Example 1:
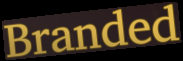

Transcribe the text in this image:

Branded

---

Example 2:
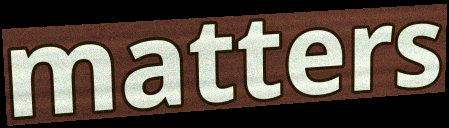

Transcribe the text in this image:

matters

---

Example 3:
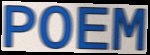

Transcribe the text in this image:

POEM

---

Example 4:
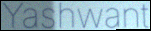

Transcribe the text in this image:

Yashwant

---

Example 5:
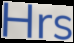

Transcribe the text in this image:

Hrs